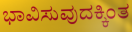
ಭಾವಿಸುವುದಕ್ಕಿಂತ